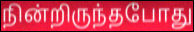
நின்றிருந்தபோது